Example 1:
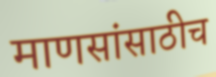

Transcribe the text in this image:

माणसांसाठीच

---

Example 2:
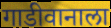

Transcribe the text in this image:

गाडीवानाला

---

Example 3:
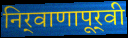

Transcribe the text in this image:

निर्वाणापूर्वी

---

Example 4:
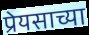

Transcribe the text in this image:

प्रेयसाच्या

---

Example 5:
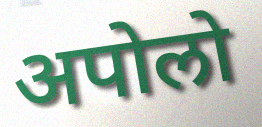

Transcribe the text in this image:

अपोलो